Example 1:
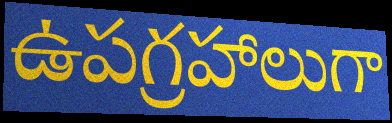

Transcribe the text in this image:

ఉపగ్రహాలుగా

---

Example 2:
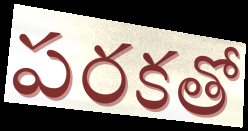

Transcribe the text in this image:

పరకతో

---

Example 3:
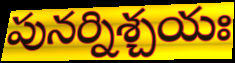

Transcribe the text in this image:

పునర్నిశ్చయః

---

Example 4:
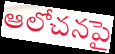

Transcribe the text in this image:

ఆలోచనపై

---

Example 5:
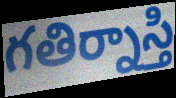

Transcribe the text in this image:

గతిర్నాస్తి